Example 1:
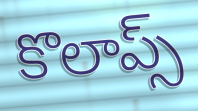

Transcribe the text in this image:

కొలాప్స్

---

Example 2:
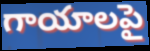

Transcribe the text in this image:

గాయాలపై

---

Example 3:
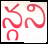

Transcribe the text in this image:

న్గని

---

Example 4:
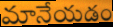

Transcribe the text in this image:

మానేయడం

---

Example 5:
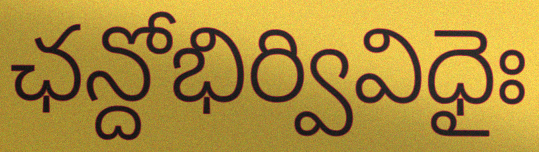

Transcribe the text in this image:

ఛన్దోభిర్వివిధైః